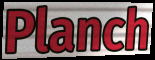
Planch